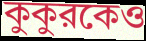
কুকুরকেও